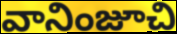
వానింజూచి